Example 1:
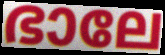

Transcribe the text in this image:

ഭാലേ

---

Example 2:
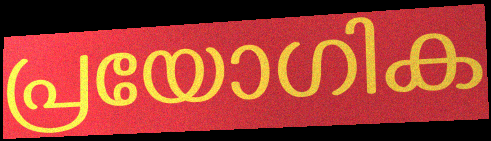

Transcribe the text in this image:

പ്രയോഗിക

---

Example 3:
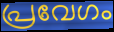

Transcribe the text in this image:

പ്രവേഗം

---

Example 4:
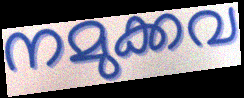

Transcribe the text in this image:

നമുക്കവ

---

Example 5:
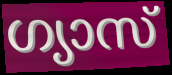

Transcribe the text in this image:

ഗ്യാസ്